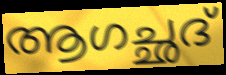
ആഗച്ഛദ്